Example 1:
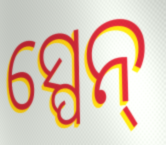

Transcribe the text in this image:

ସ୍ପେନ୍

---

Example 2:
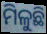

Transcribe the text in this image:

ମିଳୁଛି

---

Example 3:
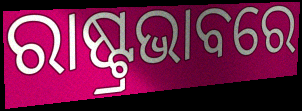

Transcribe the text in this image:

ରାଷ୍ଟ୍ରଭାବରେ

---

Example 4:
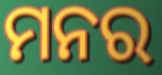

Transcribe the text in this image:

ମନର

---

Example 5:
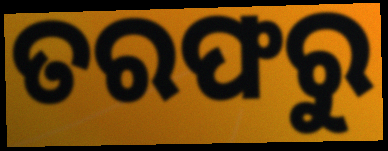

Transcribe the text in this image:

ତରଫରୁ